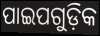
ପାଇପଗୁଡ଼ିକ